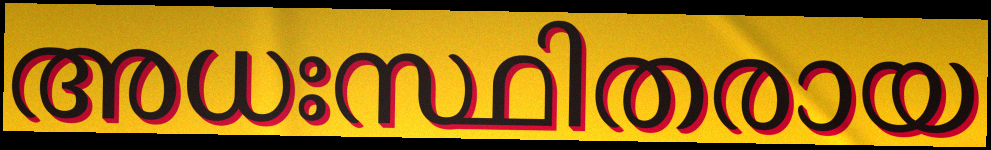
അധഃസ്ഥിതരായ